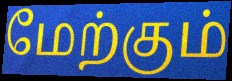
மேற்கும்